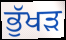
ਭੁੱਖੜ